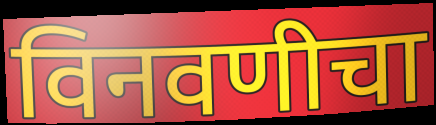
विनवणीचा